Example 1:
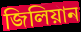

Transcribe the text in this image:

জিলিয়ান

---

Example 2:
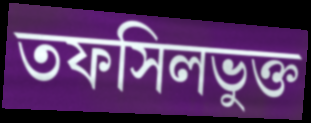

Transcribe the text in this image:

তফসিলভুক্ত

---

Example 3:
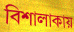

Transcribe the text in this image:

বিশালাকায়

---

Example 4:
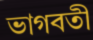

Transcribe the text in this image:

ভাগবতী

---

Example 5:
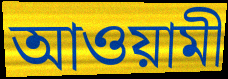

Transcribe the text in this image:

আওয়ামী